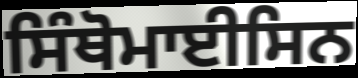
ਸਿੰਥੋਮਾਈਸਿਨ